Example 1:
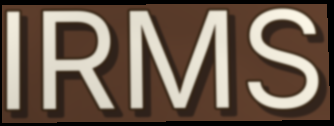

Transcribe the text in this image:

IRMS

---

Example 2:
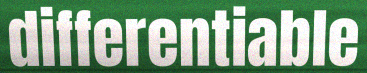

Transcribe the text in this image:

differentiable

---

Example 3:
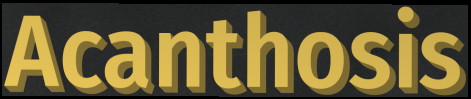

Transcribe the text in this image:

Acanthosis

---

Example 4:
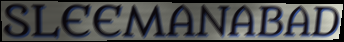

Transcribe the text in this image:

SLEEMANABAD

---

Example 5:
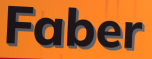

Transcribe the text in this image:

Faber